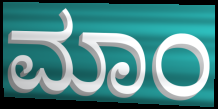
ಮಾಂ